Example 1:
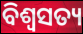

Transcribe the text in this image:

ବିଶ୍ୱସତ୍ୟ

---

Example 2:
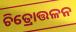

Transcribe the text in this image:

ଚିତ୍ରୋତ୍ତଳନ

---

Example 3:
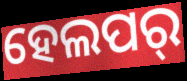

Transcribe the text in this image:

ହେଲପର୍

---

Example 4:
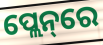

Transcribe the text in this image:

ପ୍ଲେନ୍‌ରେ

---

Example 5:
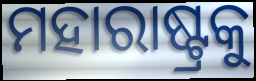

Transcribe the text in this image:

ମହାରାଷ୍ଟ୍ରକୁ